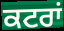
ਕਟਰਾਂ